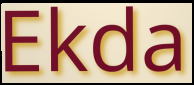
Ekda